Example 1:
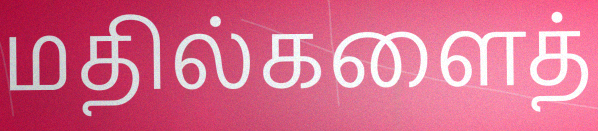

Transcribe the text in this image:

மதில்களைத்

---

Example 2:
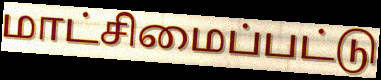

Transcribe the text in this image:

மாட்சிமைப்பட்டு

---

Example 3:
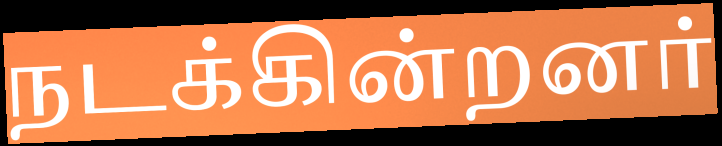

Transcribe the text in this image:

நடக்கின்றனர்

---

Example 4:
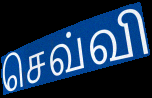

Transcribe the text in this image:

செவ்வி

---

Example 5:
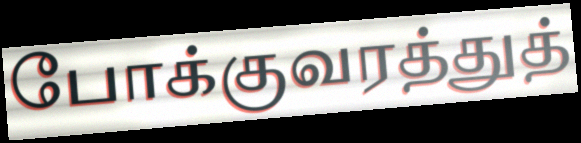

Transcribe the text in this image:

போக்குவரத்துத்